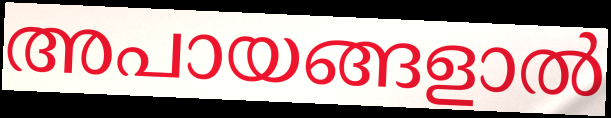
അപായങ്ങളാൽ